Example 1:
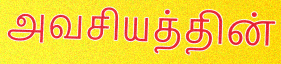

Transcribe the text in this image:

அவசியத்தின்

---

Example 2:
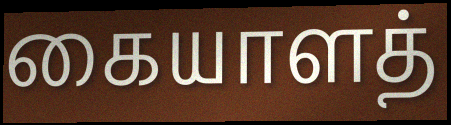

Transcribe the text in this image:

கையாளத்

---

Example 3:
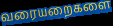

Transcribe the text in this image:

வரையறைகளை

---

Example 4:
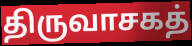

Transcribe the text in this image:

திருவாசகத்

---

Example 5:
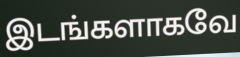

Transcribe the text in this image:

இடங்களாகவே